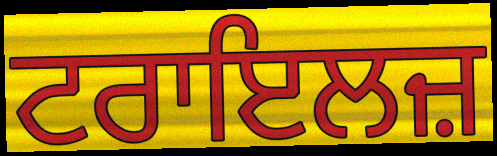
ਟਰਾਇਲਜ਼